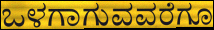
ಒಳಗಾಗುವವರೆಗೂ